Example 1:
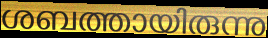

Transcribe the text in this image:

ശബത്തായിരുന്നു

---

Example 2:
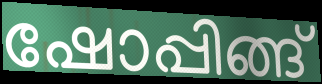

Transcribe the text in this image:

ഷോപ്പിങ്ങ്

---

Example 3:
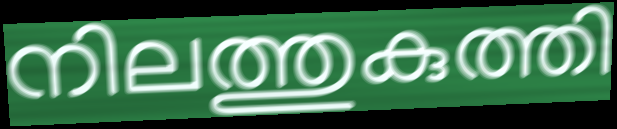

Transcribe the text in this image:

നിലത്തുകുത്തി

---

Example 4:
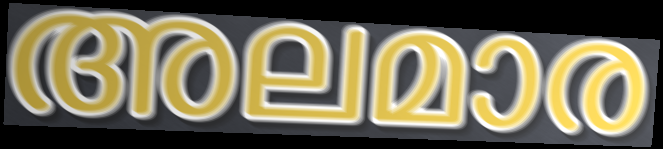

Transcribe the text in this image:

അലമാര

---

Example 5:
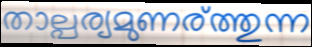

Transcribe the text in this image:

താല്പര്യമുണര്ത്തുന്ന